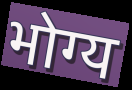
भोग्य